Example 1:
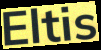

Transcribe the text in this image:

Eltis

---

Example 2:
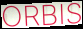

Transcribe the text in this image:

ORBIS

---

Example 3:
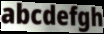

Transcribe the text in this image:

abcdefgh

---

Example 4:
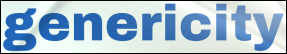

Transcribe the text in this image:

genericity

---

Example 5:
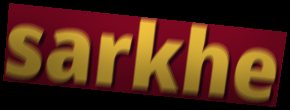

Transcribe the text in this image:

sarkhe